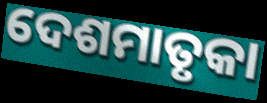
ଦେଶମାତୃକା